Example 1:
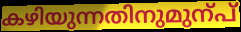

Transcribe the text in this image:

കഴിയുന്നതിനുമുന്പ്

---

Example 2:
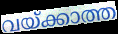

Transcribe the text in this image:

വയ്ക്കാത്ത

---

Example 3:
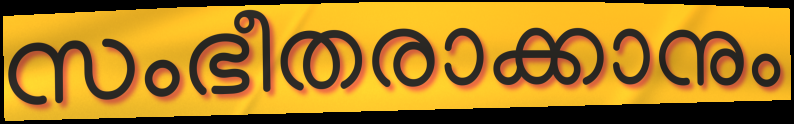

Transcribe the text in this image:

സംഭീതരാക്കാനും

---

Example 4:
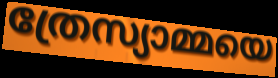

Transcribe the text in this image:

ത്രേസ്യാമ്മയെ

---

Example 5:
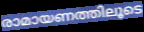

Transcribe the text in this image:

രാമായണത്തിലൂടെ